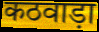
कठवाड़ा